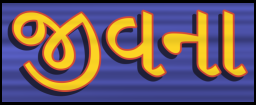
જીવના